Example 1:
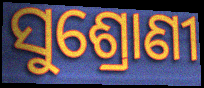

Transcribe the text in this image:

ସୁଶ୍ରୋଣୀ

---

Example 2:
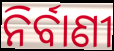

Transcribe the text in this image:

ନିର୍ବାଣୀ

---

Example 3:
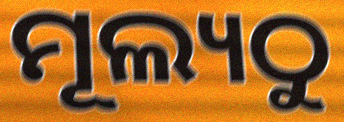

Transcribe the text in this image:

ମୂଲ୍ୟଠୁ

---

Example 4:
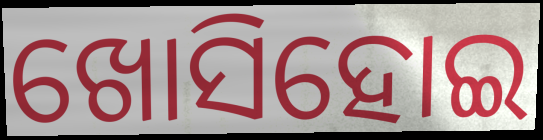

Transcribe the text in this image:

ଖୋସିହୋଇ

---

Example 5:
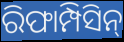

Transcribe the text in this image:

ରିଫାମ୍ପିସିନ୍